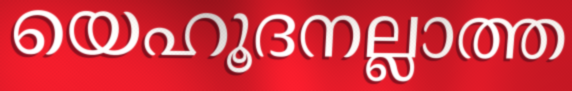
യെഹൂദനല്ലാത്ത